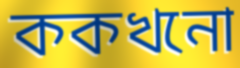
ককখনো